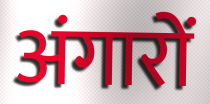
अंगारों